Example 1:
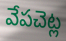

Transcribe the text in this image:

వేపచెట్ల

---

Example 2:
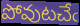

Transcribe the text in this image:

పోవుటచేఁ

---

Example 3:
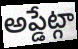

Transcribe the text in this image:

అప్డేట్గా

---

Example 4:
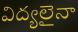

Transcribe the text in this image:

విద్యలైనా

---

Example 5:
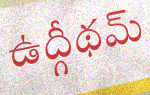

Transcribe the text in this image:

ఉద్గీథమ్